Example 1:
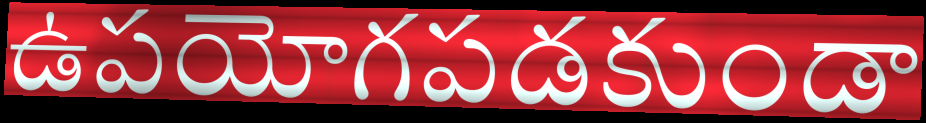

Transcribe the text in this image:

ఉపయోగపడకుండా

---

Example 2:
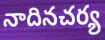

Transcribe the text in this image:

నాదినచర్య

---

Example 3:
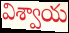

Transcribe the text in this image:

విశ్వాయ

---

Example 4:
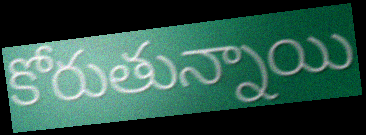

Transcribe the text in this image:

కోరుతున్నాయి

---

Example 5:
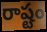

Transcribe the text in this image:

రాష్టం